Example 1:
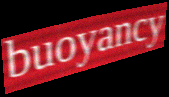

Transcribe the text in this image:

buoyancy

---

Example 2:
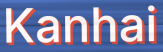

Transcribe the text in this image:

Kanhai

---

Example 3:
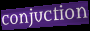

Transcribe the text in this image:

conjuction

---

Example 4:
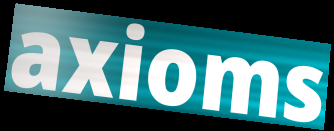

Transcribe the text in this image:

axioms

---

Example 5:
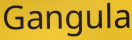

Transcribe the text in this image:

Gangula